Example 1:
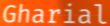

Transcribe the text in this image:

Gharial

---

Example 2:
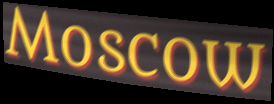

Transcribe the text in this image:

Moscow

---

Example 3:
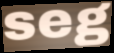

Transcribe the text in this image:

seg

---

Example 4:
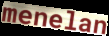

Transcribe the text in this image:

menelan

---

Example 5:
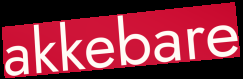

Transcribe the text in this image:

akkebare